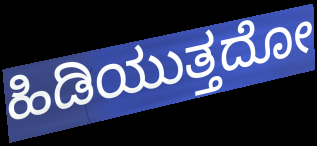
ಹಿಡಿಯುತ್ತದೋ